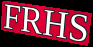
FRHS